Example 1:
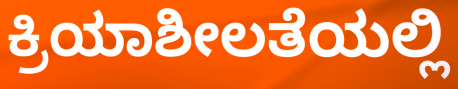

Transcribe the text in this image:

ಕ್ರಿಯಾಶೀಲತೆಯಲ್ಲಿ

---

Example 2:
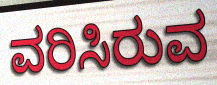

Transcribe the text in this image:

ವರಿಸಿರುವ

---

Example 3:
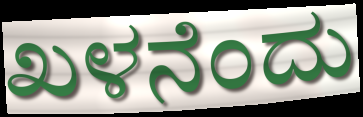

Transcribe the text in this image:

ಖಳನೆಂದು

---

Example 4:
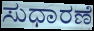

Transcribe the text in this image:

ಸುಧಾರಣೆ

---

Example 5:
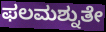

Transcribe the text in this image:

ಫಲಮಶ್ನುತೇ